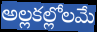
అల్లకల్లోలమే